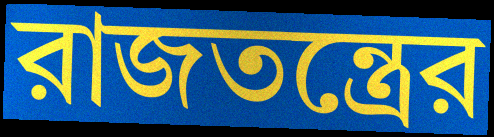
রাজতন্ত্রের